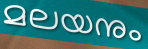
മലയനും